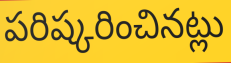
పరిష్కరించినట్లు